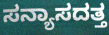
ಸನ್ಯಾಸದತ್ತ